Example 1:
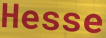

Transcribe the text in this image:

Hesse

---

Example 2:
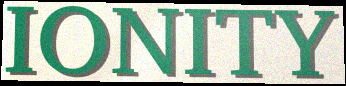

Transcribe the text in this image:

IONITY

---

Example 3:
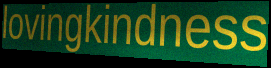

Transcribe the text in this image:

lovingkindness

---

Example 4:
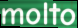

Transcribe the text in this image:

molto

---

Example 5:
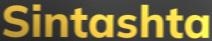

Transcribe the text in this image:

Sintashta